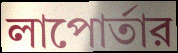
লাপোর্তার